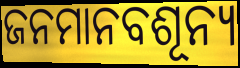
ଜନମାନବଶୂନ୍ୟ